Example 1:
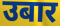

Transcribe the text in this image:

उबार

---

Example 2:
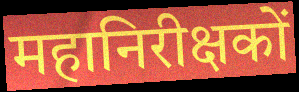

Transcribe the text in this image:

महानिरीक्षकों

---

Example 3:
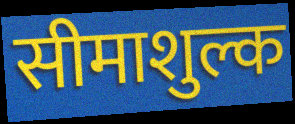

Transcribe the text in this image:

सीमाशुल्क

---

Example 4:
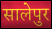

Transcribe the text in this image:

सालेपुर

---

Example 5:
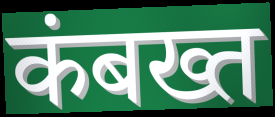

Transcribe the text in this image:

कंबख्त